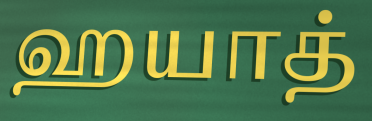
ஹயாத்